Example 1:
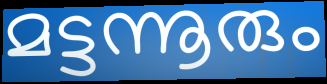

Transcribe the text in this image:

മട്ടന്നൂരും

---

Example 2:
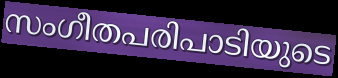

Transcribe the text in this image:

സംഗീതപരിപാടിയുടെ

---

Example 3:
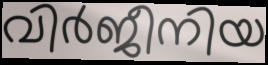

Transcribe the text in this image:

വിർജീനിയ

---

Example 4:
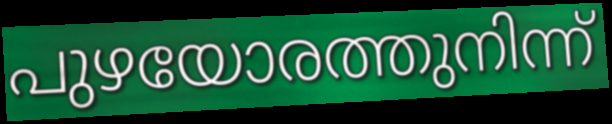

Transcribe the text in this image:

പുഴയോരത്തുനിന്ന്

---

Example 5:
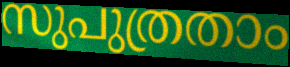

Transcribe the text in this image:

സുപുത്രതാം